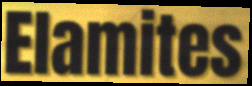
Elamites